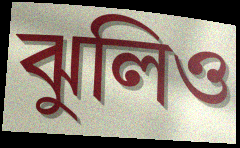
ঝুলিও